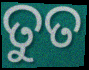
ତୁତ